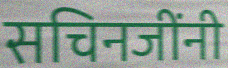
सचिनजींनी